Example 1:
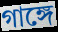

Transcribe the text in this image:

গাঙ্গে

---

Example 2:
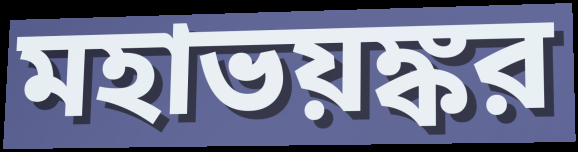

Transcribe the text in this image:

মহাভয়ঙ্কর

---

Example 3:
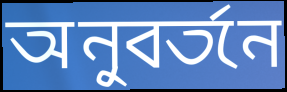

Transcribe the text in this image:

অনুবর্তনে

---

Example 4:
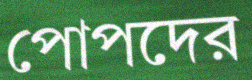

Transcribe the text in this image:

পোপদের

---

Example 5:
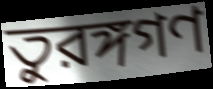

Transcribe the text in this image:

তুরঙ্গগণ